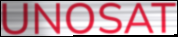
UNOSAT